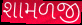
શામળજી